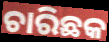
ଚାରିଛକ